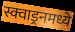
स्क्वाड्रनमध्ये